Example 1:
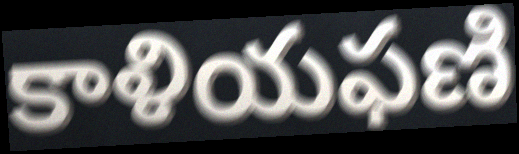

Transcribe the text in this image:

కాళియఫణి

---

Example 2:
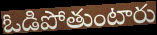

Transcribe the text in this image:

ఓడిపోతుంటారు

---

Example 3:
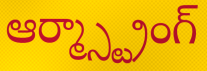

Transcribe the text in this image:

ఆర్మ్స్ట్రాంగ్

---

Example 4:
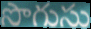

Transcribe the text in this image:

సొగుసు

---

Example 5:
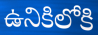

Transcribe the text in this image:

ఉనికిలోకి